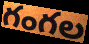
గంగల